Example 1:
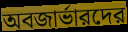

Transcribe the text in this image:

অবজার্ভারদের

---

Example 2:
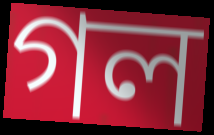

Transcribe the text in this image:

গল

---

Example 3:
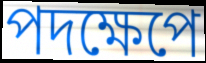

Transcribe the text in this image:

পদক্ষেপে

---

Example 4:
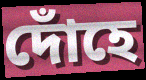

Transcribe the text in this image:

দোঁহে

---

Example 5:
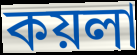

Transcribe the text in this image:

কয়লা